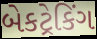
બેકટ્રેકિંગ